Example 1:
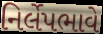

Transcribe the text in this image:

નિર્લેપભાવે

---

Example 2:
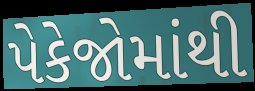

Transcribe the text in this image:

પેકેજોમાંથી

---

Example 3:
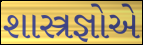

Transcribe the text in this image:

શાસ્ત્રજ્ઞોએ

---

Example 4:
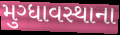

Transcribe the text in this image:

મુગ્ધાવસ્થાના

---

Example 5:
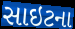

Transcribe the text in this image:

સાઇટના